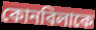
কোনবিলাকে